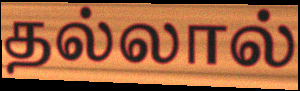
தல்லால்